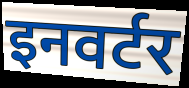
इनवर्टर